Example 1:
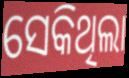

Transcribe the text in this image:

ସେକିଥିଲା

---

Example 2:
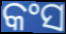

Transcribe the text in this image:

କଂସ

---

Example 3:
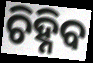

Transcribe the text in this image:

ଚିହ୍ନିବ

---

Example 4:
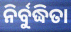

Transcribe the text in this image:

ନିର୍ବୁଦ୍ଧିତା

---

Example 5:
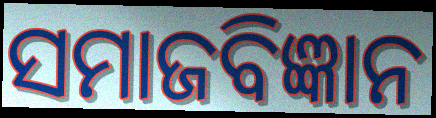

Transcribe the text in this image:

ସମାଜବିଜ୍ଞାନ